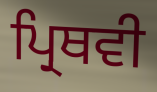
ਪ੍ਰਿਥਵੀ